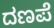
ದಣಪೆ